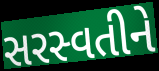
સરસ્વતીને